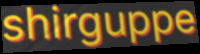
shirguppe